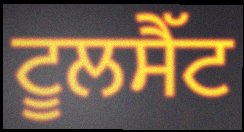
ਟੂਲਸੈੱਟ